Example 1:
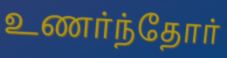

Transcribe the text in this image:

உணர்ந்தோர்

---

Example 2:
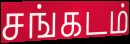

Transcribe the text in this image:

சங்கடம்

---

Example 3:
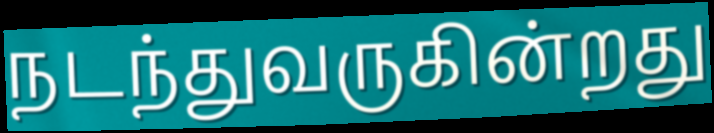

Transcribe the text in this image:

நடந்துவருகின்றது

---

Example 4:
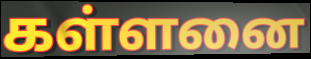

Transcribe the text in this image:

கள்ளனை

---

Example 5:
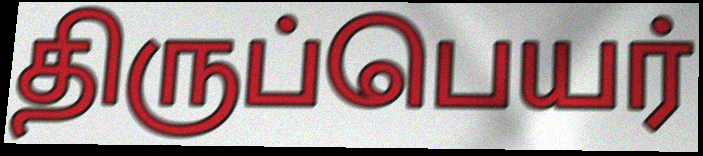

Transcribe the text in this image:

திருப்பெயர்